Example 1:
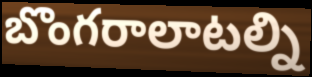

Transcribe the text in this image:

బొంగరాలాటల్ని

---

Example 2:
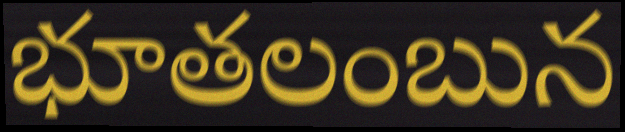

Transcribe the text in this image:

భూతలంబున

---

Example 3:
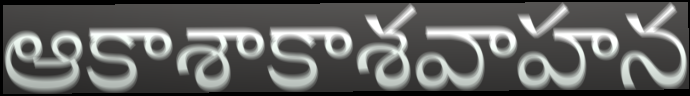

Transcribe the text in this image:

ఆకాశాకాశవాహన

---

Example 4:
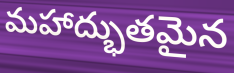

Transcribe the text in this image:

మహాద్భుతమైన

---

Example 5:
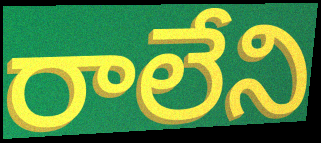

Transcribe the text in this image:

రాలేని